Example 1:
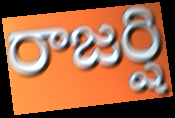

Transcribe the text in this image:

రాజర్షి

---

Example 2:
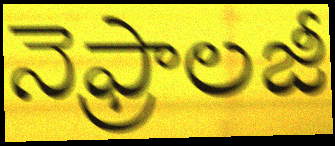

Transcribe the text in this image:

నెఫ్రాలజీ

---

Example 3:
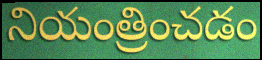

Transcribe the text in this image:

నియంత్రించడం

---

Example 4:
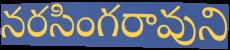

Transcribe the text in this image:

నరసింగరావుని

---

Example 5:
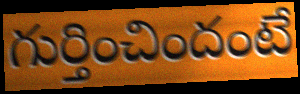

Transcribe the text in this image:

గుర్తించిందంటే